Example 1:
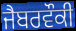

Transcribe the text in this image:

ਜੈਬਰਵੌਕੀ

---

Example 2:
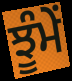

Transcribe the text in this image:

ਝੂੰਮੇਂ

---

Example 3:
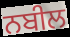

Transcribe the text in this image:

ਨਬੀਲ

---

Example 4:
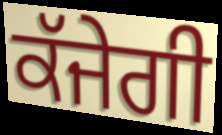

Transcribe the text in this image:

ਕੱਜੇਗੀ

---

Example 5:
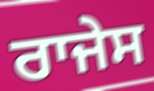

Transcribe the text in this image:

ਰਾਜੇਸ